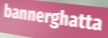
bannerghatta